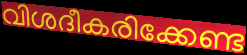
വിശദീകരിക്കേണ്ട